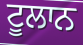
ਟੂਲਾਨ